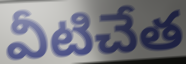
వీటిచేత